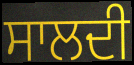
ਸਾਲਦੀ